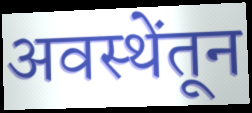
अवस्थेंतून